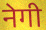
नेगी